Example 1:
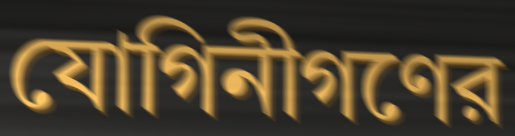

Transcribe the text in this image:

যোগিনীগণের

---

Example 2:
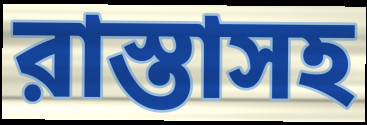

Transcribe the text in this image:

রাস্তাসহ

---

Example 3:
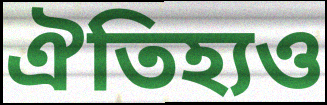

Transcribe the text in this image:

ঐতিহ্যও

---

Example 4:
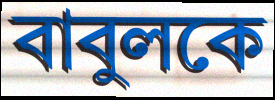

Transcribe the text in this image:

বাবুলকে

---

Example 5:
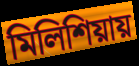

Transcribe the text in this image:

মিলিশিয়ায়